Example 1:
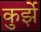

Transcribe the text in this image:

कुर्झे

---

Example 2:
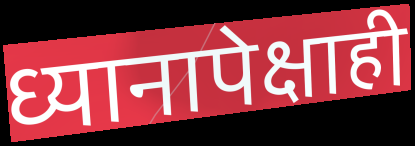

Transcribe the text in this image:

ध्यानापेक्षाही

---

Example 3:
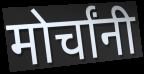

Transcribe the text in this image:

मोर्चांनी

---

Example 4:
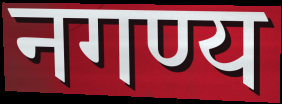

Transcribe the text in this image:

नगण्य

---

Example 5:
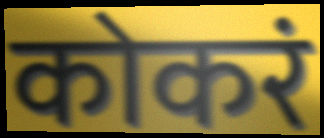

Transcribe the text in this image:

कोकरं